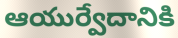
ఆయుర్వేదానికి